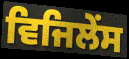
ਵਿਜਿਲੇਂਸ